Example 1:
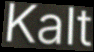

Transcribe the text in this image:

Kalt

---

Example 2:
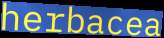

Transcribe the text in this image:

herbacea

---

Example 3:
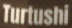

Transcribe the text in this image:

Turtushi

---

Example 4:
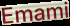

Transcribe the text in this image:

Emami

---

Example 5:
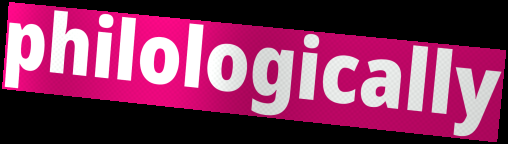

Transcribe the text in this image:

philologically